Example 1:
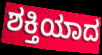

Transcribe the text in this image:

ಶಕ್ತಿಯಾದ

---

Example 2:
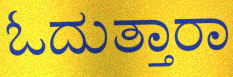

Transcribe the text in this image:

ಓದುತ್ತಾರಾ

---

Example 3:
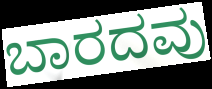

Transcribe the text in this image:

ಬಾರದವು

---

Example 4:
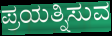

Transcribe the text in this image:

ಪ್ರಯತ್ನಿಸುವ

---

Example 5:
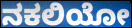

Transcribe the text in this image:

ನಕಲಿಯೋ